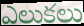
ఎలుకలు